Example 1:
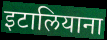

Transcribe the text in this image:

इटालियाना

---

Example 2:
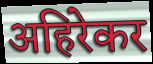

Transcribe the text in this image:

अहिरेकर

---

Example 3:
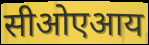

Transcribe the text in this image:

सीओएआय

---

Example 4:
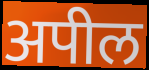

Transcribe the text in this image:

अपील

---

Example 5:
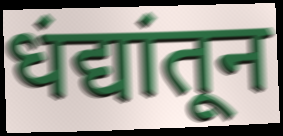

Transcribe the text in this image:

धंद्यांतून